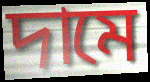
দামে